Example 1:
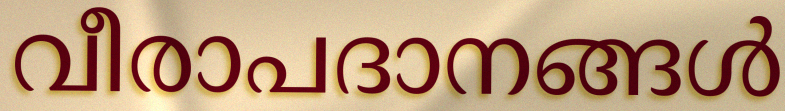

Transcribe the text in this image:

വീരാപദാനങ്ങൾ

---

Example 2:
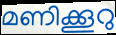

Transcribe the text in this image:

മണിക്കൂറു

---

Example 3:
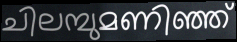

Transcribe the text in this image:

ചിലമ്പുമണിഞ്ഞ്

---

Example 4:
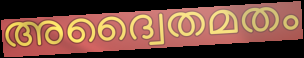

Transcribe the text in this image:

അദ്വൈതമതം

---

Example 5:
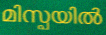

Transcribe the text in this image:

മിസ്പയിൽ